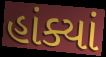
હાંક્યાં